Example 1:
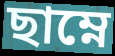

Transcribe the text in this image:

ছাম্নে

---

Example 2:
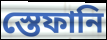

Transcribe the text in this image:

স্তেফানি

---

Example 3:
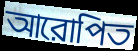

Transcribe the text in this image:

আরোপিত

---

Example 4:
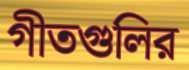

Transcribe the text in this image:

গীতগুলির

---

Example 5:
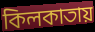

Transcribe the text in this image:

কিলকাতায়